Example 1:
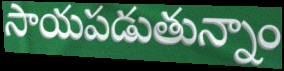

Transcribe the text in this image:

సాయపడుతున్నాం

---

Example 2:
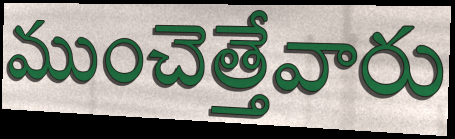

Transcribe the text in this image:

ముంచెత్తేవారు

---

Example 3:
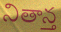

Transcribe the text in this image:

నితాన్త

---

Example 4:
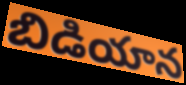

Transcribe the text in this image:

బిడియాన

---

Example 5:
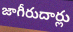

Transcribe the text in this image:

జాగీరుదార్లు